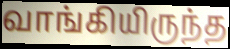
வாங்கியிருந்த